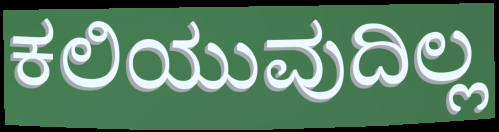
ಕಲಿಯುವುದಿಲ್ಲ